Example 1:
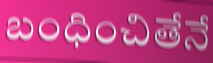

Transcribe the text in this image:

బంధించితేనే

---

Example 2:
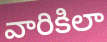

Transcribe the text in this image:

వారికిలా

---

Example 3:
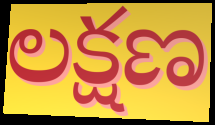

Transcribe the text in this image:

లక్షణ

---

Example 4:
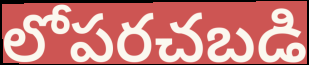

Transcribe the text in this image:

లోపరచబడి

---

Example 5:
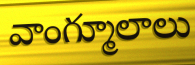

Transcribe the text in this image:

వాంగ్మూలాలు